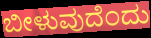
ಬೀಳುವುದೆಂದು